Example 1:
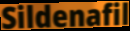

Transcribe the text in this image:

Sildenafil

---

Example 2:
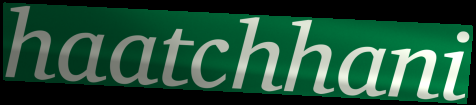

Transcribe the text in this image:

haatchhani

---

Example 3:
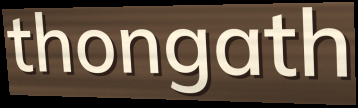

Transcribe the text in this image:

thongath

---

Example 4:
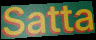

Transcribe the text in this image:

Satta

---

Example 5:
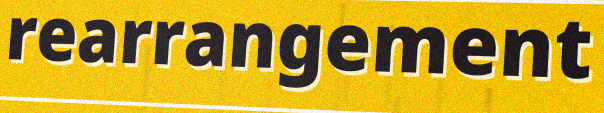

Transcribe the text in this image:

rearrangement